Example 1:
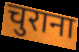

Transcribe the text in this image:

चुराना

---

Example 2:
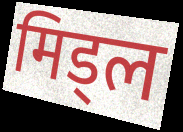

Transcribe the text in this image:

मिड्ल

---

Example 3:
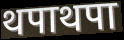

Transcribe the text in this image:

थपाथपा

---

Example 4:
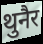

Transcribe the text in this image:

थुनैर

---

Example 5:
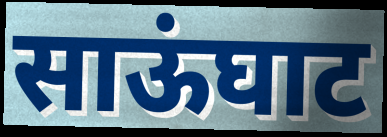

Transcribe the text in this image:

साऊंघाट